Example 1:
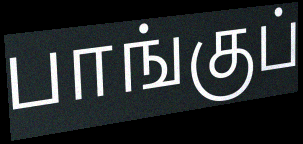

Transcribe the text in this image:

பாங்குப்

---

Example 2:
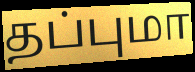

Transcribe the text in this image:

தப்புமா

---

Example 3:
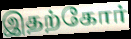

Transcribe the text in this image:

இதற்கோர்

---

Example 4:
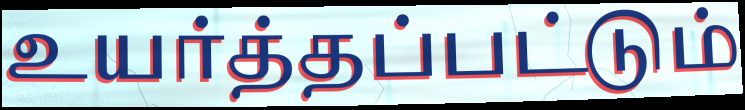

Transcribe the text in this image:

உயர்த்தப்பட்டும்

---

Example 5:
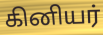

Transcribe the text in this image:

கினியர்